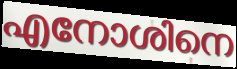
എനോശിനെ